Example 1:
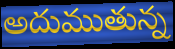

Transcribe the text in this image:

అదుముతున్న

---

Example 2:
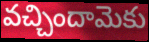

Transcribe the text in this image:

వచ్చిందామెకు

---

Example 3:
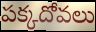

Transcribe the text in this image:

పక్కదోవలు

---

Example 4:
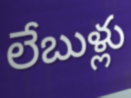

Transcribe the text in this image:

లేబుళ్లు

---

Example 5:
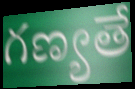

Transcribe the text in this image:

గణ్యతే